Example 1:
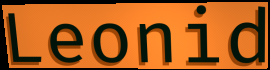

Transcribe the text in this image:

Leonid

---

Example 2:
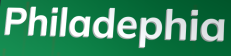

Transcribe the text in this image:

Philadephia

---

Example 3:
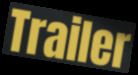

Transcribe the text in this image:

Trailer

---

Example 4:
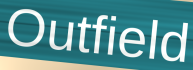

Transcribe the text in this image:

Outfield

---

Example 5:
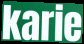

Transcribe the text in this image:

karie